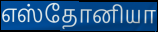
எஸ்தோனியா